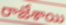
రాజేశాయి